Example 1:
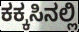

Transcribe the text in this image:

ಕಕ್ಕಸಿನಲ್ಲಿ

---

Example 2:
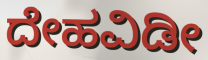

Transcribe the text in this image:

ದೇಹವಿಡೀ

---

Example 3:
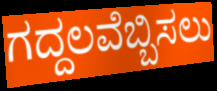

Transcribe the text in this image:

ಗದ್ದಲವೆಬ್ಬಿಸಲು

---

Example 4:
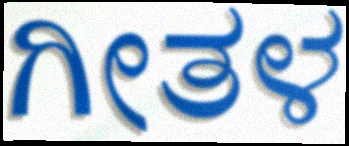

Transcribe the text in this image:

ಗೀತಳ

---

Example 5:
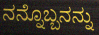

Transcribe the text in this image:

ನನ್ನೊಬ್ಬನನ್ನು